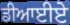
ਡੀਆਈਏ